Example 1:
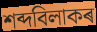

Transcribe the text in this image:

শব্দবিলাকৰ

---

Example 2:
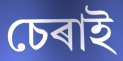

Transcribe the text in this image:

চেৰাই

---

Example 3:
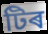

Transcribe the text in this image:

টিৰ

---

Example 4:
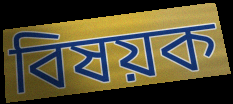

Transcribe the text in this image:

বিষয়ক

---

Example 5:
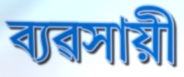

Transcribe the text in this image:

ব্যৱসায়ী